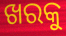
ଖରକୁ